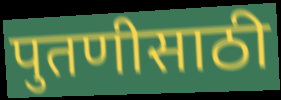
पुतणीसाठी